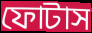
ফোটাস